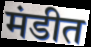
मंडीत